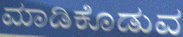
ಮಾಡಿಕೊಡುವ